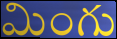
మింగు